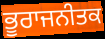
ਭੂਰਾਜਨੀਤਕ